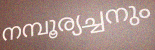
നമ്പൂര്യച്ചനും